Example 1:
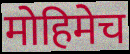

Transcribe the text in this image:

मोहिमेच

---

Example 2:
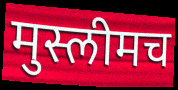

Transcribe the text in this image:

मुस्लीमच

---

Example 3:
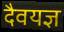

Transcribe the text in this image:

दैवयज्ञ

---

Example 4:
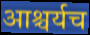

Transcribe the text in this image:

आश्चर्यच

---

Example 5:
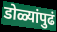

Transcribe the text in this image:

डोळ्यांपुढं